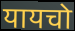
यायचो